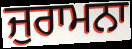
ਜੁਰਾਮਨਾ